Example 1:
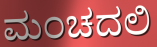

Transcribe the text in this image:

ಮಂಚದಲಿ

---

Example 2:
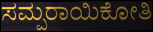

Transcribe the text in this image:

ಸಮ್ಪರಾಯಿಕೋತಿ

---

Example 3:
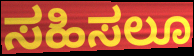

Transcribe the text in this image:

ಸಹಿಸಲೂ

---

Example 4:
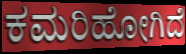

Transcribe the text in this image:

ಕಮರಿಹೋಗಿದೆ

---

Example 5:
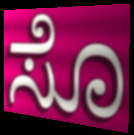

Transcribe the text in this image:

ಸೊ